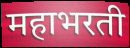
महाभरती